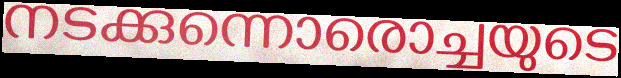
നടക്കുന്നൊരൊച്ചയുടെ